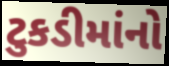
ટુકડીમાંનો